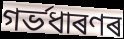
গৰ্ভধাৰণৰ